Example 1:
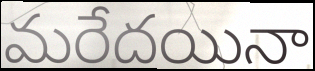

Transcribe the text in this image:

మరేదయినా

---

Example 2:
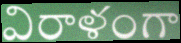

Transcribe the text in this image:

విరాళంగా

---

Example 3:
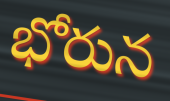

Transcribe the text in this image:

భోరున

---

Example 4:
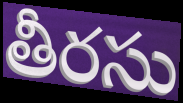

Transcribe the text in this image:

తీరసు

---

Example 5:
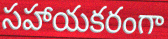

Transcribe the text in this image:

సహాయకరంగా